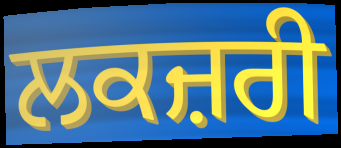
ਲਕਜ਼ਰੀ